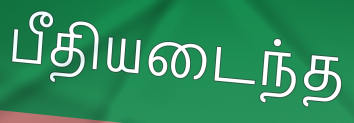
பீதியடைந்த